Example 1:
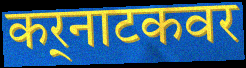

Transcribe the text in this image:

कर्नाटकवर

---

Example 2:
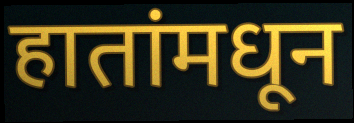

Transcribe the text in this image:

हातांमधून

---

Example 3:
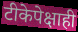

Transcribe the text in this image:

टीकेपेक्षाही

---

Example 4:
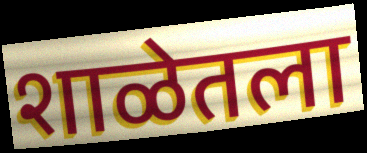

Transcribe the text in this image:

शाळेतला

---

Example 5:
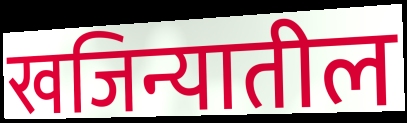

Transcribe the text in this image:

खजिन्यातील